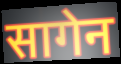
सागेन